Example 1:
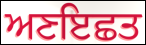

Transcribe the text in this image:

ਅਣਇਛਤ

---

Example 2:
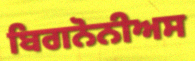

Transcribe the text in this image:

ਬਿਗਨੋਨੀਅਸ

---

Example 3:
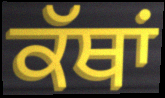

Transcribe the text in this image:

ਕੱਥਾਂ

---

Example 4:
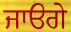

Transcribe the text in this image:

ਜਾੳਗੇ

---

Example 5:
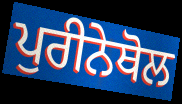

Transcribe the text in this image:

ਪੁਰੀਨੇਥੋਲ